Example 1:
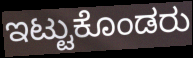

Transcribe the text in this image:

ಇಟ್ಟುಕೊಂಡರು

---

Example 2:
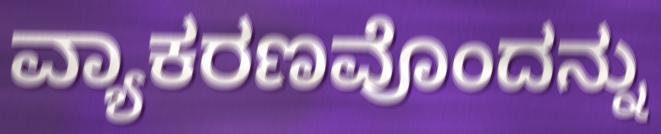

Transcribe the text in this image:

ವ್ಯಾಕರಣವೊಂದನ್ನು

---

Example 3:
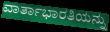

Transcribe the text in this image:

ವಾರ್ತಾಭಾರತಿಯನ್ನು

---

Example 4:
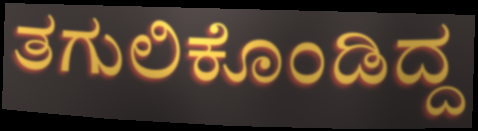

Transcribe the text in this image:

ತಗುಲಿಕೊಂಡಿದ್ದ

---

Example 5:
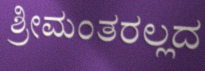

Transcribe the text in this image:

ಶ್ರೀಮಂತರಲ್ಲದ